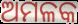
ଅମଳକ